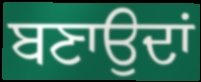
ਬਣਾਉਦਾਂ